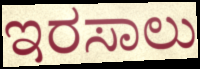
ಇರಸಾಲು